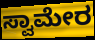
ಸ್ವಾಮೇರ